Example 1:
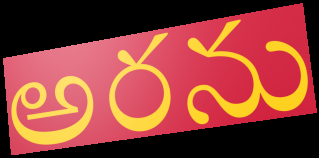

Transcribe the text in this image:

అరను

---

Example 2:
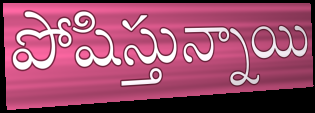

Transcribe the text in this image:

పోషిస్తున్నాయి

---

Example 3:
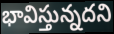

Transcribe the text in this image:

భావిస్తున్నదని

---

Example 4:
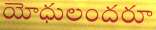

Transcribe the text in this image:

యోధులందరూ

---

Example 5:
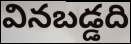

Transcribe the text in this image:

వినబడ్డది